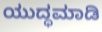
ಯುದ್ಧಮಾಡಿ